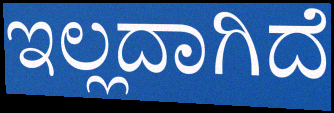
ಇಲ್ಲದಾಗಿದೆ